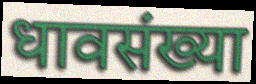
धावसंख्या